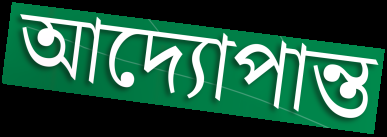
আদ্যোপান্ত